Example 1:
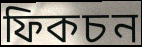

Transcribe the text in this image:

ফিকচন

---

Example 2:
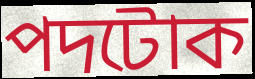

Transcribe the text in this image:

পদটোক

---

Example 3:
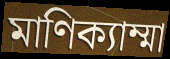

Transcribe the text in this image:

মাণিক্যাম্মা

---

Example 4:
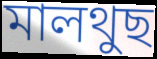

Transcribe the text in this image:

মালথুছ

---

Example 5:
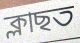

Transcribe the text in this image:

ক্লাছত